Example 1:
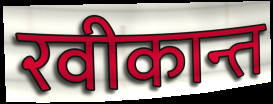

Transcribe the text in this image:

रवीकान्त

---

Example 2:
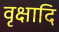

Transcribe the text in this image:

वृक्षादि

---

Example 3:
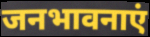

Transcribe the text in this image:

जनभावनाएं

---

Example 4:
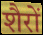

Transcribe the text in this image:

शैरों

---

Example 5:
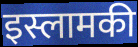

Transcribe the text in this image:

इस्लामकी